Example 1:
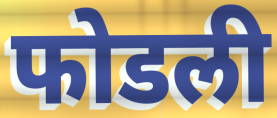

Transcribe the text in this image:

फोडली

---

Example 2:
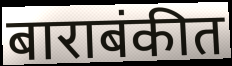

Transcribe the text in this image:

बाराबंकीत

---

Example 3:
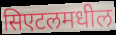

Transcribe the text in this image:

सिएटलमधील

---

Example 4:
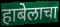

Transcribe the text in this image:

हाबेलाचा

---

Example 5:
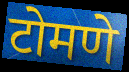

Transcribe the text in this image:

टोमणे